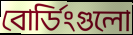
বোর্ডিংগুলো